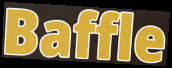
Baffle